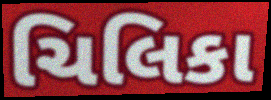
ચિલિકા